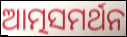
ଆତ୍ମସମର୍ଥନ